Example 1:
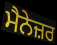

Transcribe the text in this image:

ਮੈਨੇਜ਼ਰ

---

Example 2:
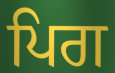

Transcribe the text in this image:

ਪਿਗ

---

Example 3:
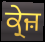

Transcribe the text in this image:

ਕ੍ਰੇਜ਼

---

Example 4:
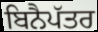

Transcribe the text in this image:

ਬਿਨੈਪੱਤਰ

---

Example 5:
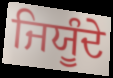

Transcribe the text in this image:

ਜਿਯੂੰਦੇ